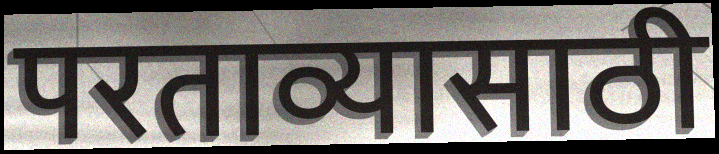
परताव्यासाठी